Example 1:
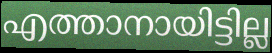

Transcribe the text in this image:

എത്താനായിട്ടില്ല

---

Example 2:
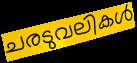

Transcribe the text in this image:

ചരടുവലികൾ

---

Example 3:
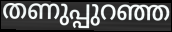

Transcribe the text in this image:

തണുപ്പുറഞ്ഞ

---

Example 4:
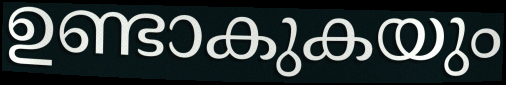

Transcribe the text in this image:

ഉണ്ടാകുകയും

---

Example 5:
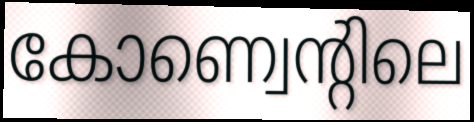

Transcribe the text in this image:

കോണ്വെന്റിലെ